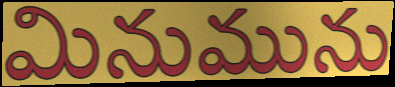
మినుమును